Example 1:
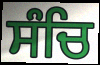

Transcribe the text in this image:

ਸੰਚਿ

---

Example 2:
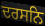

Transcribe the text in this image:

ਦਰਸਨਿ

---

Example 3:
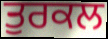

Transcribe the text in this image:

ਤੁਰਕਲ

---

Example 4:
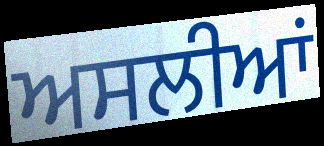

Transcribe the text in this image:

ਅਸਲੀਆਂ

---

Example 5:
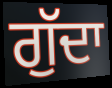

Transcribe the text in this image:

ਗੁੱਦਾ